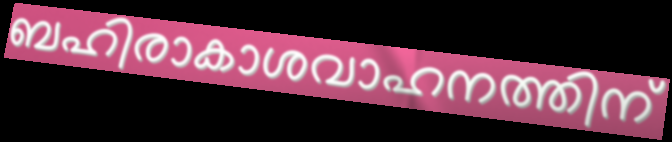
ബഹിരാകാശവാഹനത്തിന്